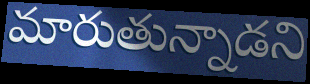
మారుతున్నాడని